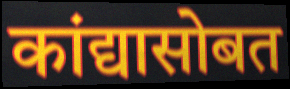
कांद्यासोबत